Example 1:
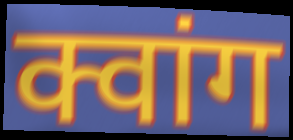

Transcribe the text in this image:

क्वांग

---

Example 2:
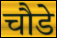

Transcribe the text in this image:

चौडे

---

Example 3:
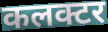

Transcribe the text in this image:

कलक्टर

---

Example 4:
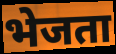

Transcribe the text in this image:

भेजता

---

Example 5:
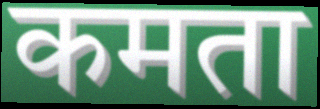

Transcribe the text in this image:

कमता